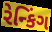
રેન્કિંગ